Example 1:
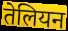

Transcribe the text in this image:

तेलियन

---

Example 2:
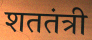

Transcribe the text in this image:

शततंत्री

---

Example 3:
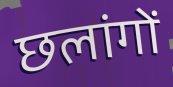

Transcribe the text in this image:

छलांगों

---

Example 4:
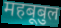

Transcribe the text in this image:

महबूबुल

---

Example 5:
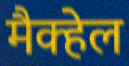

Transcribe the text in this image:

मैक्हेल